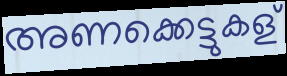
അണക്കെട്ടുകള്